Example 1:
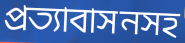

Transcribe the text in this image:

প্রত্যাবাসনসহ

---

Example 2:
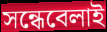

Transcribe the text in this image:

সন্ধেবেলাই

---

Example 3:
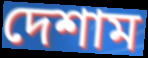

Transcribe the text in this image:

দেশাম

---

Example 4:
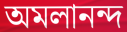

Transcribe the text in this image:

অমলানন্দ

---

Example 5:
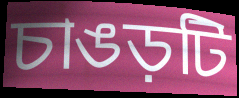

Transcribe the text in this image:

চাঙড়টি